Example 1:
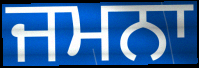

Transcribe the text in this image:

ਜਮਨਾ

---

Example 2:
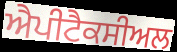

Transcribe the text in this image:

ਐਪੀਟੈਕਸੀਅਲ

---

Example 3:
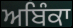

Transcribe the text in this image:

ਅਬਿੰਕਾ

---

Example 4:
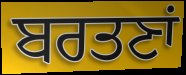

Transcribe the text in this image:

ਬਰਤਣਾਂ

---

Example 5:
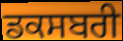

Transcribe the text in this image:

ਡਕਸਬਰੀ